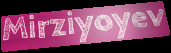
Mirziyoyev